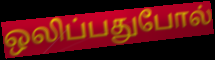
ஒலிப்பதுபோல்